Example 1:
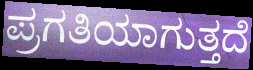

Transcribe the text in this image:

ಪ್ರಗತಿಯಾಗುತ್ತದೆ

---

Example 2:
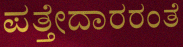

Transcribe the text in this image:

ಪತ್ತೇದಾರರಂತೆ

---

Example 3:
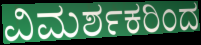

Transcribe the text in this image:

ವಿಮರ್ಶಕರಿಂದ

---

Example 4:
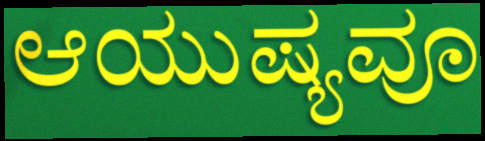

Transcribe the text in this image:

ಆಯುಷ್ಯವೂ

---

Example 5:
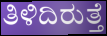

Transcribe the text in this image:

ತಿಳಿದಿರುತ್ತೆ